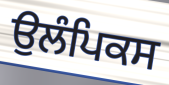
ਉਲੰਪਿਕਸ